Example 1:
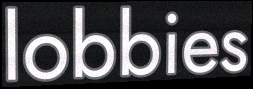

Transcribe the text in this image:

lobbies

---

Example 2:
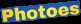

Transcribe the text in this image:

Photoes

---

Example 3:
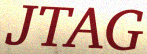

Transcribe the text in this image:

JTAG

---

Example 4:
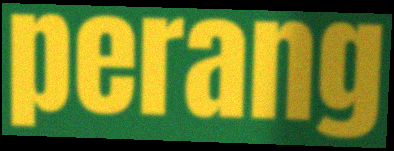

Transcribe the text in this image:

perang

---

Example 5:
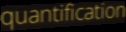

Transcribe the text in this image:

quantification